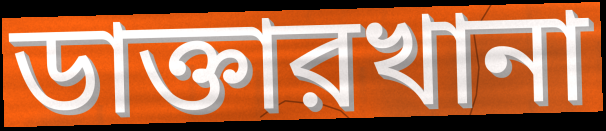
ডাক্তারখানা